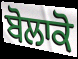
ਬੋਲਾਕੋ